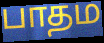
பாதம